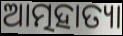
ଆତ୍ମହାତ୍ୟା